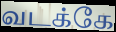
வடக்கே